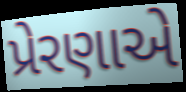
પ્રેરણાએ